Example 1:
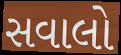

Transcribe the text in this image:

સવાલો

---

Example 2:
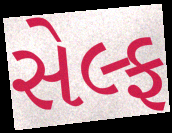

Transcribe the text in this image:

સેલ્ફ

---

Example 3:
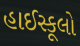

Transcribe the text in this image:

હાઈસ્કૂલો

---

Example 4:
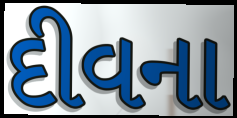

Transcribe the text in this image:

દીવના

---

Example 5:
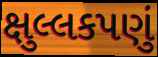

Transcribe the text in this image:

ક્ષુલ્લકપણું